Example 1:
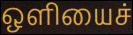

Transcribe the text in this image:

ஒளியைச்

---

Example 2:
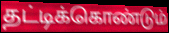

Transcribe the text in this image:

தட்டிக்கொண்டும்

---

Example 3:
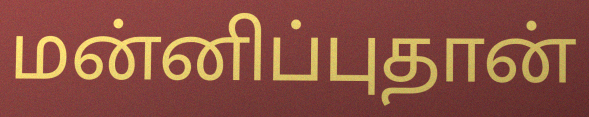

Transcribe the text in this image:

மன்னிப்புதான்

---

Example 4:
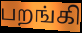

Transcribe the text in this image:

பறங்கி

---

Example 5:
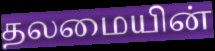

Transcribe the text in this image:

தலமையின்